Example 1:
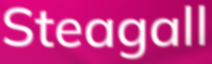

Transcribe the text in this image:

Steagall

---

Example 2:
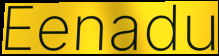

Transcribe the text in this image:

Eenadu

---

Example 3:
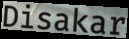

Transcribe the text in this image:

Disakar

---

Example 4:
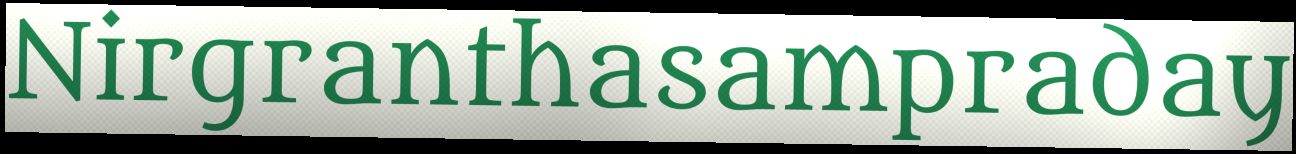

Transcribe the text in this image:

Nirgranthasampraday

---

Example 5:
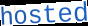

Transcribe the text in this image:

hosted